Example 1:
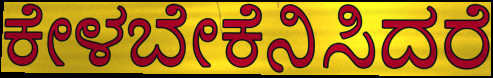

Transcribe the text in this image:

ಕೇಳಬೇಕೆನಿಸಿದರೆ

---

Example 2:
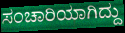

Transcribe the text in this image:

ಸಂಚಾರಿಯಾಗಿದ್ದು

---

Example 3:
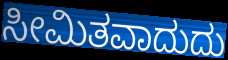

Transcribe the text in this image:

ಸೀಮಿತವಾದುದು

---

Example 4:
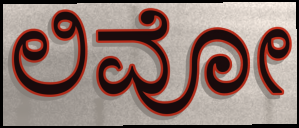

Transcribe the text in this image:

ಲಿವೋ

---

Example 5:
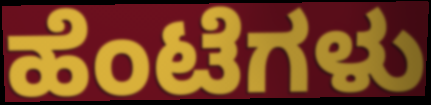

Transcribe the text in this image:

ಹೆಂಟೆಗಳು